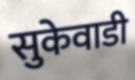
सुकेवाडी